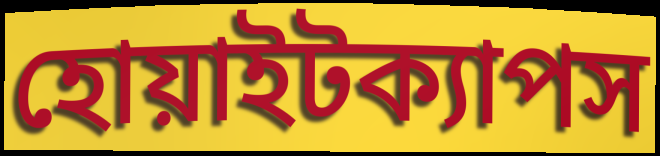
হোয়াইটক্যাপস